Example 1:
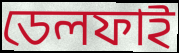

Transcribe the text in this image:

ডেলফাই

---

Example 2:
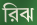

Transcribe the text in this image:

রিঝ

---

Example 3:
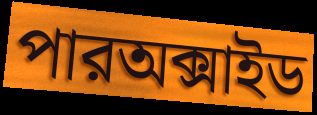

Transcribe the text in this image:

পারঅক্সাইড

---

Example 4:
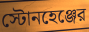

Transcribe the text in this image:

স্টোনহেঞ্জের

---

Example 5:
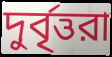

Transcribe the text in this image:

দুর্বৃত্তরা